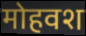
मोहवश